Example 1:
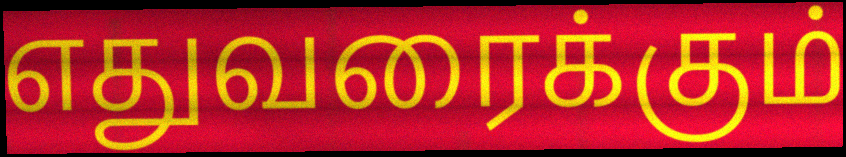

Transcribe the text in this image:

எதுவரைக்கும்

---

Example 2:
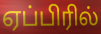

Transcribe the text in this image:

ஏப்பிரில்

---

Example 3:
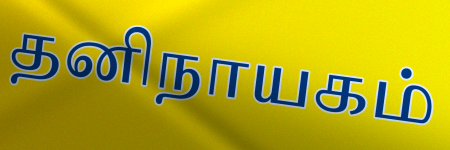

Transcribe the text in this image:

தனிநாயகம்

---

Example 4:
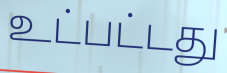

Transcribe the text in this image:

உட்பட்டது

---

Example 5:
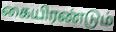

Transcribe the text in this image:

கையிரண்டும்